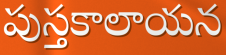
పుస్తకాలాయన